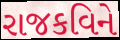
રાજકવિને